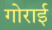
गोराई